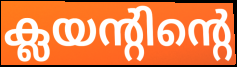
ക്ലയന്റിന്റെ